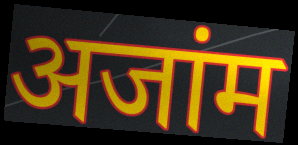
अजांम